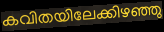
കവിതയിലേക്കിഴഞ്ഞു